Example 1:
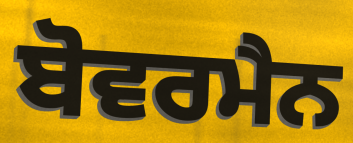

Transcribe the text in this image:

ਬੋਵਰਮੈਨ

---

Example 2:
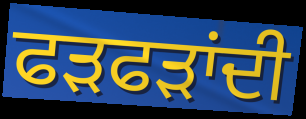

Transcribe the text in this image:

ਫੜਫੜਾਂਦੀ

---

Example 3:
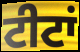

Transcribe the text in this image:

ਟੀਟਾਂ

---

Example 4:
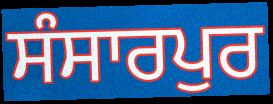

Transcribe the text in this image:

ਸੰਸਾਰਪੁਰ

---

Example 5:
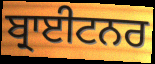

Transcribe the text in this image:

ਬ੍ਰਾਈਟਨਰ